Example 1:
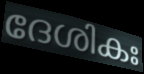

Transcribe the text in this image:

ദേശികഃ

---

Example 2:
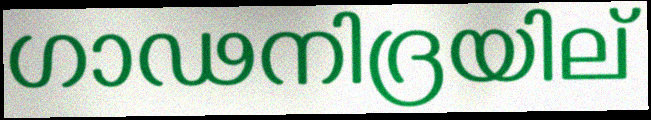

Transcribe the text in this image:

ഗാഢനിദ്രയില്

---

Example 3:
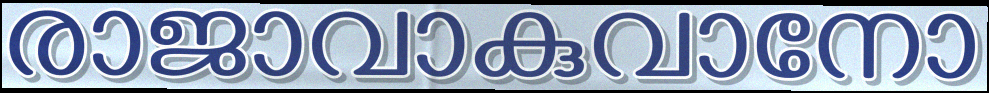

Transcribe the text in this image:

രാജാവാകുവാനോ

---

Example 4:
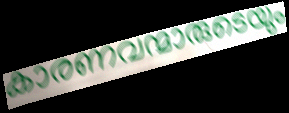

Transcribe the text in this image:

കാരണവന്മാരുടെയും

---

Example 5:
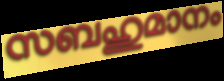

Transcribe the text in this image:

സബഹുമാനം